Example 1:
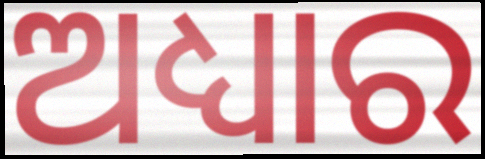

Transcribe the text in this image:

ଅଧ୍ୟାର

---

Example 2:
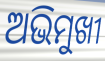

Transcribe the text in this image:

ଅଭିମୁଖୀ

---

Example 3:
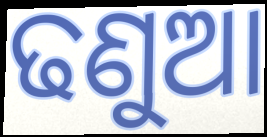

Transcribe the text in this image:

ଢଣୁଆ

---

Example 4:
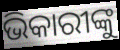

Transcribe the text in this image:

ଭିକାରୀଙ୍କୁ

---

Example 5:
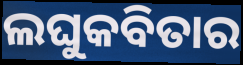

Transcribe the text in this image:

ଲଘୁକବିତାର